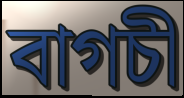
বাগচী